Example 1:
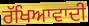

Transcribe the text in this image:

ਰੱਖਿਆਵਾਦੀ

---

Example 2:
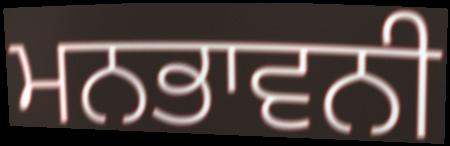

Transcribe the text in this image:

ਮਨਭਾਵਨੀ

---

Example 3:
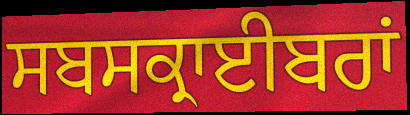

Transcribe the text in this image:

ਸਬਸਕ੍ਰਾਈਬਰਾਂ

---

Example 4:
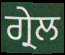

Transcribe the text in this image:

ਗ੍ਰੇਲ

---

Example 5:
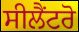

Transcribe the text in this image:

ਸੀਲੈਂਟਰੋ